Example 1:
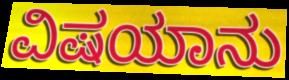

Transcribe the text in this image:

ವಿಷಯಾನು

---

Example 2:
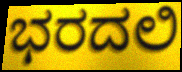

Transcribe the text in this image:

ಭರದಲಿ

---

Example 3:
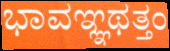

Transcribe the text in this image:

ಭಾವಞ್ಞಥತ್ತಂ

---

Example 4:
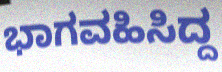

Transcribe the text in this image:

ಭಾಗವಹಿಸಿದ್ದ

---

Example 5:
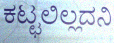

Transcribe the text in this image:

ಕಟ್ಟಲಿಲ್ಲದನಿ